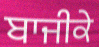
ਬਾਜੀਕੇ